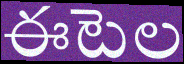
ఈటెల